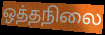
ஒத்தநிலை